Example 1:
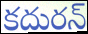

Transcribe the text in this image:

కదురన్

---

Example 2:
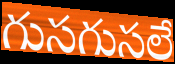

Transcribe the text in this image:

గుసగుసలే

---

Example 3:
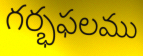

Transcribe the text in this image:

గర్భఫలము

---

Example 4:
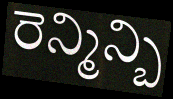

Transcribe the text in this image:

రెన్మిన్బి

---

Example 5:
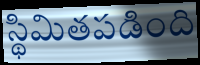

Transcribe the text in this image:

స్థిమితపడింది